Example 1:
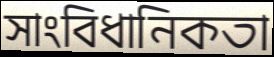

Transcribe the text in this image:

সাংবিধানিকতা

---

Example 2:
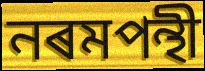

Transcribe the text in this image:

নৰমপন্থী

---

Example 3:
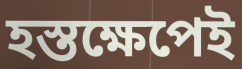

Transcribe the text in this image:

হস্তক্ষেপেই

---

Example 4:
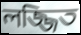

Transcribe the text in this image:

লজ্জিত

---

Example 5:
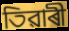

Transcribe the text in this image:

তিৱাৰী